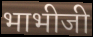
भाभीजी